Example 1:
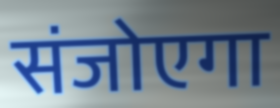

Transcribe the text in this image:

संजोएगा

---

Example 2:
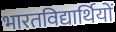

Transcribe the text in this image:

भारतविद्यार्थियों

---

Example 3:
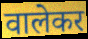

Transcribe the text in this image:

वालेकर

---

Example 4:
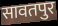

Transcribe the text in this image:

सावतपुर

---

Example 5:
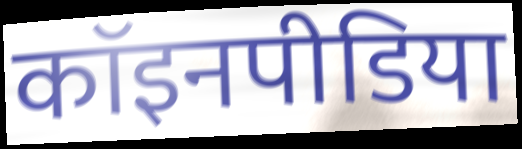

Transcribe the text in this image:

कॉइनपीडिया